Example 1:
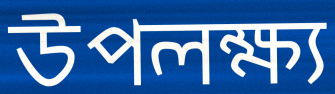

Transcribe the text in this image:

উপলক্ষ্য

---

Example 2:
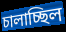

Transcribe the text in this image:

চালাচ্ছিল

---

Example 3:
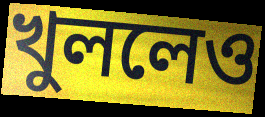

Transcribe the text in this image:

খুললেও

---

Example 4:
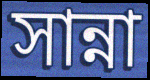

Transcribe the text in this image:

সান্না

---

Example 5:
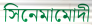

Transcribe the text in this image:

সিনেমামোদী